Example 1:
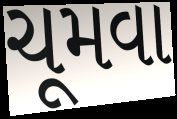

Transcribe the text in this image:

ચૂમવા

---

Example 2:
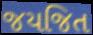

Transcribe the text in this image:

જયજિત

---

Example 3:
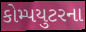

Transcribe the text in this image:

કોમ્પયુટરના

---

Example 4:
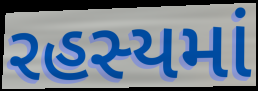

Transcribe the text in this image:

રહસ્યમાં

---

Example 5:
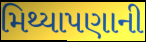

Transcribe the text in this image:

મિથ્યાપણાની